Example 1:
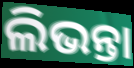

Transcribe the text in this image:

ଲିଭନ୍ତା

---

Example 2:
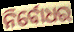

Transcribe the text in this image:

ନିର୍ବୋଧର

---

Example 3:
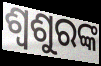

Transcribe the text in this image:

ଶ୍ୱଶୁରଙ୍କ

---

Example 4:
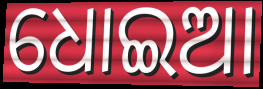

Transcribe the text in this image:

ଧୋଇଆ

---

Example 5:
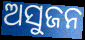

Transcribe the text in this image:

ଅସୁଜନ